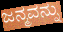
ಜನ್ಮವನ್ನು